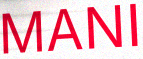
MANI